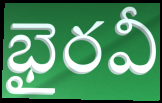
భైరవీ